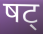
षट्